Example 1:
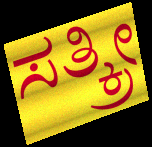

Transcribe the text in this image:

ಸತ್ಕ್ರೀ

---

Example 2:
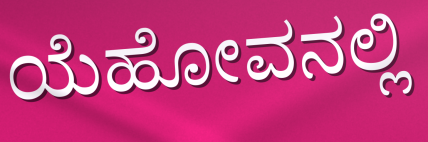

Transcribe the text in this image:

ಯೆಹೋವನಲ್ಲಿ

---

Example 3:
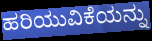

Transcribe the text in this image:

ಹರಿಯುವಿಕೆಯನ್ನು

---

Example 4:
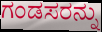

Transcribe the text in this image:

ಗಂಡಸರನ್ನು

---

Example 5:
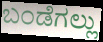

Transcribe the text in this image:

ಬಂಡೆಗಲ್ಲು